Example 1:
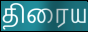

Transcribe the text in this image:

திரைய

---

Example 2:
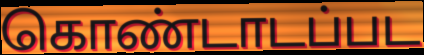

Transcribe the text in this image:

கொண்டாடப்பட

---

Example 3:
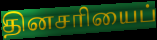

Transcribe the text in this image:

தினசரியைப்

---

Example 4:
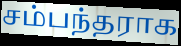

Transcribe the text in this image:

சம்பந்தராக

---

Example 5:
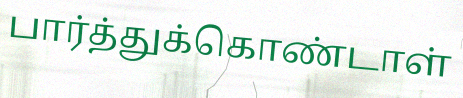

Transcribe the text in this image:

பார்த்துக்கொண்டாள்